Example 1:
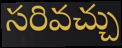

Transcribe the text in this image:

సరివచ్చు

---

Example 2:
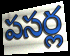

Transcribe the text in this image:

పసర్ల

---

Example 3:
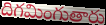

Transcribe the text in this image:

దిగమింగుతారు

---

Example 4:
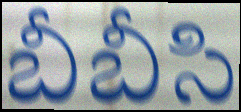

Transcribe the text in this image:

బీబీసి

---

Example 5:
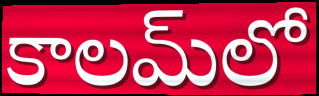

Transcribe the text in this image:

కాలమ్‍లో